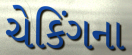
ચેકિંગના